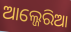
ଆଲ୍ଜେରିଆ